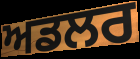
ਅਡਲਰ